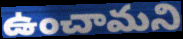
ఉంచామని